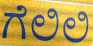
ಗೆಲಿಲಿ